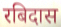
रबिदास